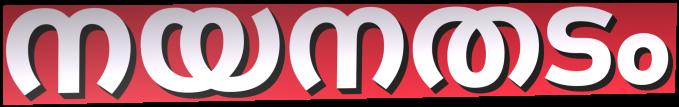
നയനതടം